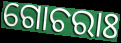
ଗୋଚରାଃ